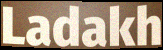
Ladakh